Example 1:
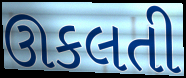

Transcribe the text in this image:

ઊકલતી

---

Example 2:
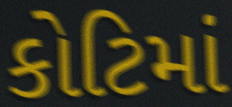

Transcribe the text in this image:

કોટિમાં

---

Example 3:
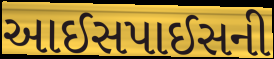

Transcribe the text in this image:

આઈસપાઈસની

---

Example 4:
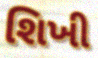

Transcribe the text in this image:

શિખી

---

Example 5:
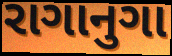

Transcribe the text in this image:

રાગાનુગા